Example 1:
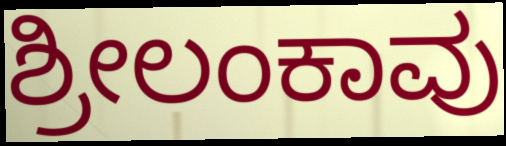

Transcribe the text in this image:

ಶ್ರೀಲಂಕಾವು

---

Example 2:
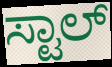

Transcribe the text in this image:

ಸ್ಟಾಲ್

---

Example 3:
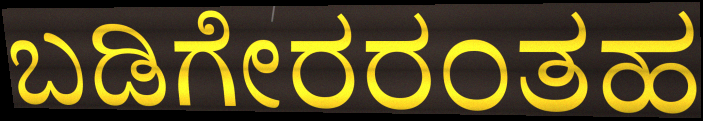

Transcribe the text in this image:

ಬಡಿಗೇರರಂತಹ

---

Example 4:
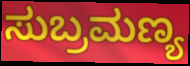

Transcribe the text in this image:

ಸುಬ್ರಮಣ್ಯ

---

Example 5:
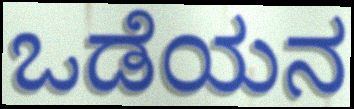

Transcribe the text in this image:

ಒಡೆಯನ